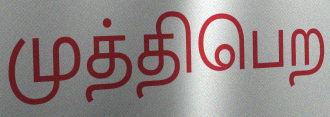
முத்திபெற